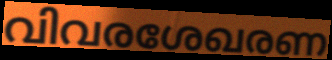
വിവരശേഖരണ